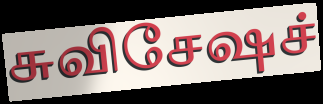
சுவிசேஷச்